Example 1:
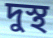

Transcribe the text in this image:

দুস্থ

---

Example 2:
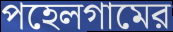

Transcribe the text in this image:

পহেলগামের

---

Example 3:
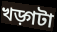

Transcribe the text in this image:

খড়্গটা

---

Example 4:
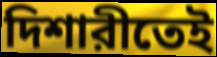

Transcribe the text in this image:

দিশারীতেই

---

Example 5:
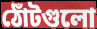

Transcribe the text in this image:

ঠোঁটগুলো